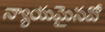
న్యాయమైనవో